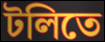
টলিতে